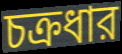
চক্রধার